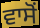
ਵਾਸੋਂ